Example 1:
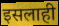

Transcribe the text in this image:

इसलाही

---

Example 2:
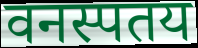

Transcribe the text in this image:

वनस्पतय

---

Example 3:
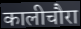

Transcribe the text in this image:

कालीचौरा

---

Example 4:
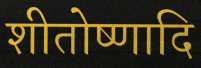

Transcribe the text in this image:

शीतोष्णादि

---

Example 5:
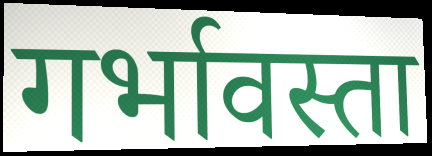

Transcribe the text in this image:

गर्भावस्ता